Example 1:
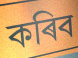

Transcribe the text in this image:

কৰিব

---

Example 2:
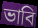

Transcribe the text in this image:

ভাবি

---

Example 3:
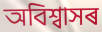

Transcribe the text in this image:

অবিশ্বাসৰ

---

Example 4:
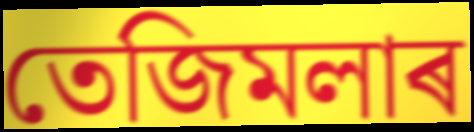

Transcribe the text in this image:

তেজিমলাৰ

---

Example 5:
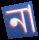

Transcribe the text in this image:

না